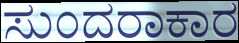
ಸುಂದರಾಕಾರ